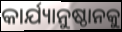
କାର୍ଯ୍ୟାନୁଷ୍ଠାନକୁ